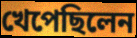
খেপেছিলেন